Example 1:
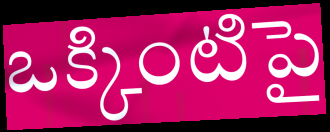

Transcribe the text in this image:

ఒక్కింటిపై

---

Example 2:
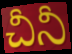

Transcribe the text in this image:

చీనీ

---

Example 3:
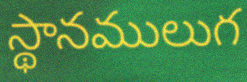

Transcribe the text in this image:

స్థానములుగ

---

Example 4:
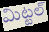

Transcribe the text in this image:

మిట్టల్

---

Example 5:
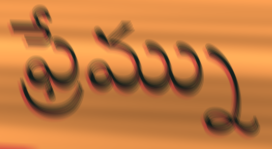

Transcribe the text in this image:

ఫ్రేమ్ను